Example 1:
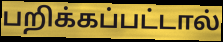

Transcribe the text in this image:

பறிக்கப்பட்டால்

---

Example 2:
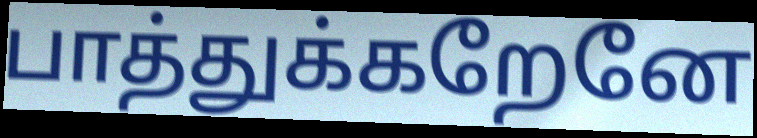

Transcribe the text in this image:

பாத்துக்கறேனே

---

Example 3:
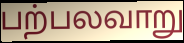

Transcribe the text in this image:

பற்பலவாறு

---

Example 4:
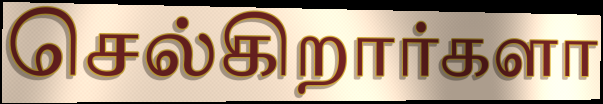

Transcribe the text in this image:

செல்கிறார்களா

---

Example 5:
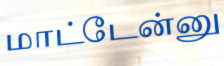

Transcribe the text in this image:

மாட்டேன்னு